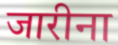
जारीना